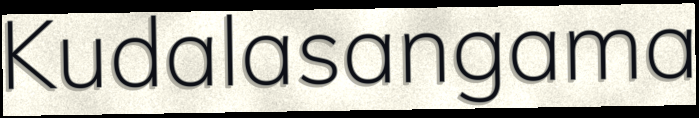
Kudalasangama